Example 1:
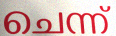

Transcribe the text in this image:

ചെന്ന്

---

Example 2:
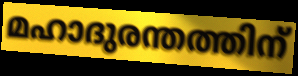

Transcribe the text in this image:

മഹാദുരന്തത്തിന്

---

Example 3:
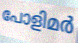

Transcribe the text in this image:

പോളിമർ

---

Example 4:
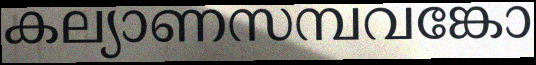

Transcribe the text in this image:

കല്യാണസമ്പവങ്കോ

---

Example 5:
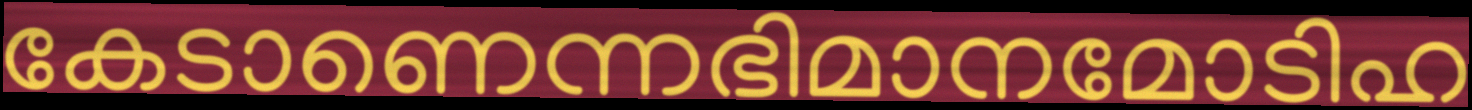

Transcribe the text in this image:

കേടാണെന്നഭിമാനമോടിഹ